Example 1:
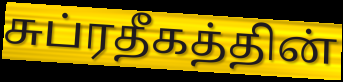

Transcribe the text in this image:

சுப்ரதீகத்தின்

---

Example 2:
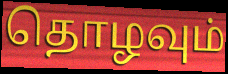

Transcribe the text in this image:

தொழவும்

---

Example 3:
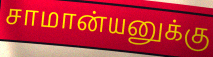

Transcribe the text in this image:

சாமான்யனுக்கு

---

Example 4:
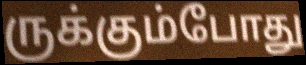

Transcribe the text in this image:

ருக்கும்போது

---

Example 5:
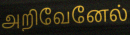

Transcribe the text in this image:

அறிவேனேல்